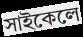
সাইকেলে